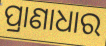
ପ୍ରାଣାଧାର